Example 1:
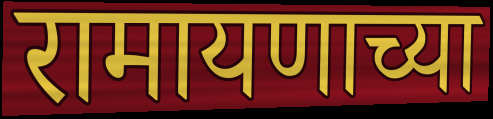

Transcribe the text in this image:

रामायणाच्या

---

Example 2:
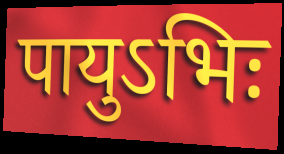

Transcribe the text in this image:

पायुऽभिः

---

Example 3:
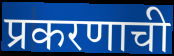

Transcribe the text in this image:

प्रकरणाची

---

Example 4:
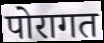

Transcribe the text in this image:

पोरागत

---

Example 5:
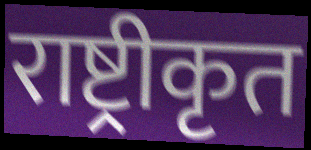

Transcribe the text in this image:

राष्ट्रीकृत